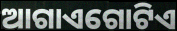
ଆଗାଏଗୋଟିଏ